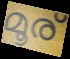
മൂര്